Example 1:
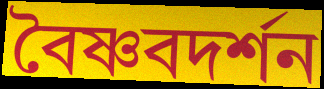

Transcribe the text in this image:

বৈষ্ণবদর্শন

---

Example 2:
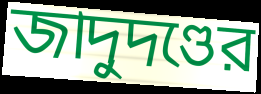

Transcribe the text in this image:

জাদুদণ্ডের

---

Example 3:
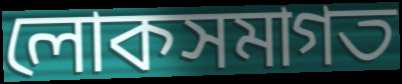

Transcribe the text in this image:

লোকসমাগত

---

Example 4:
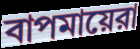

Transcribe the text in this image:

বাপমায়েরা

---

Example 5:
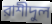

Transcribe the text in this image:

রাশীদুল